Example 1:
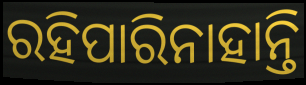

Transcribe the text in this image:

ରହିପାରିନାହାନ୍ତି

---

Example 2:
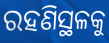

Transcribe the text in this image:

ରହଣିସ୍ଥଳକୁ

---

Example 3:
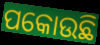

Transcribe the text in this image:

ପକୋଉଛି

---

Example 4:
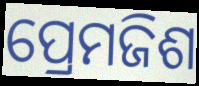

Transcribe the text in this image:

ପ୍ରେମଜିଶ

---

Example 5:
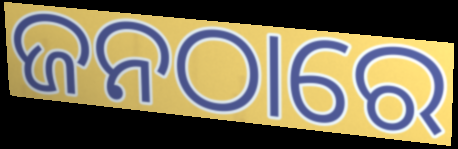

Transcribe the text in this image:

ଜନଠାରେ